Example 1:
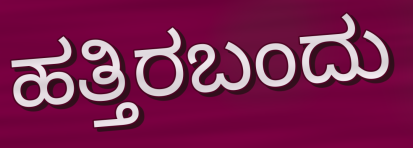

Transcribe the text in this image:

ಹತ್ತಿರಬಂದು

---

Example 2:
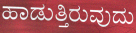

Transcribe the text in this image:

ಹಾಡುತ್ತಿರುವುದು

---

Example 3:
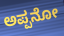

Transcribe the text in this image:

ಅಪ್ಪನೋ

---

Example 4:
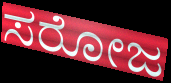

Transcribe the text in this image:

ಸರೋಜ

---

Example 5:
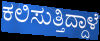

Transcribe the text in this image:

ಕಲಿಸುತ್ತಿದ್ದಾಳೆ